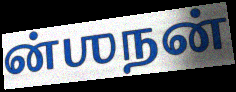
ன்ஶநன்